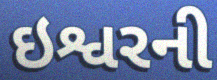
ઇશ્વરની